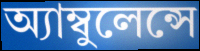
অ্যাম্বুলেন্সে